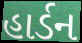
હાર્ડન